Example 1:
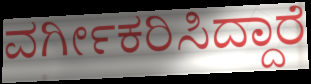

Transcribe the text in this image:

ವರ್ಗೀಕರಿಸಿದ್ದಾರೆ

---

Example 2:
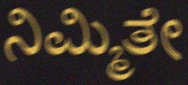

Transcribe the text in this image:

ನಿಮ್ಮಿತೇ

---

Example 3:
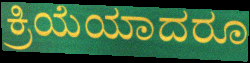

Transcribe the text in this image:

ಕ್ರಿಯೆಯಾದರೂ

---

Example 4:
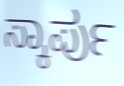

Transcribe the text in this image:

ಸ್ಕಾರ್ಪು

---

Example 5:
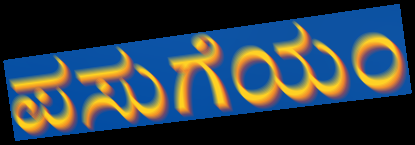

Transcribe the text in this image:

ಪಸುಗೆಯಂ